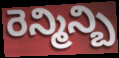
రెన్మిన్బి